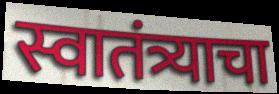
स्‍वातंत्र्याचा